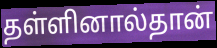
தள்ளினால்தான்